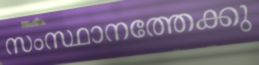
സംസ്ഥാനത്തേക്കു